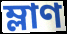
ম্লাণ